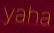
yaha